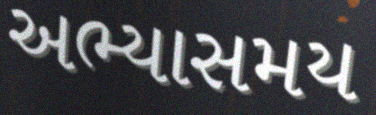
અભ્યાસમય